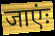
जाएंः